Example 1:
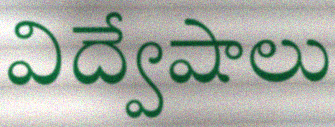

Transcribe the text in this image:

విద్వేషాలు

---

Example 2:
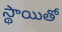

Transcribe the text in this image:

స్థాయితో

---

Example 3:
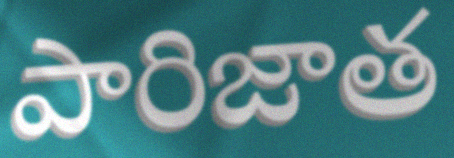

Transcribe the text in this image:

పారిజాత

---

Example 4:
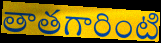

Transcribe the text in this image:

తాతగారింటి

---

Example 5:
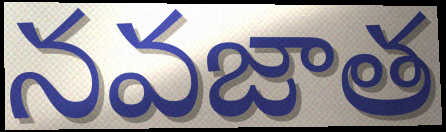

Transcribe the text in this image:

నవజాత